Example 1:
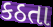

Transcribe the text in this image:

કઠતા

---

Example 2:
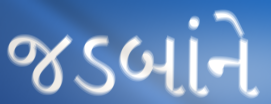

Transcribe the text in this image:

જડબાંને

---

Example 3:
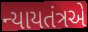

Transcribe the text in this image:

ન્યાયતંત્રએ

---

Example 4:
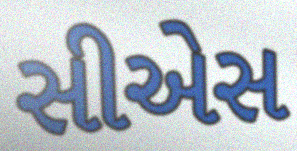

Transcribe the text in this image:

સીએસ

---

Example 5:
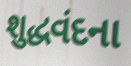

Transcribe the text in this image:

શુદ્ધવંદના